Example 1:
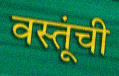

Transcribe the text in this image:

वस्तूंची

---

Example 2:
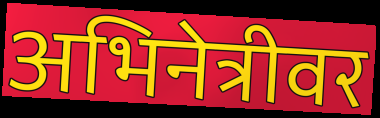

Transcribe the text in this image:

अभिनेत्रीवर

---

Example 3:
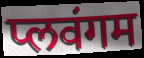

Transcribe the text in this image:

प्लवंगम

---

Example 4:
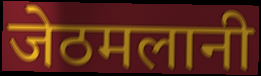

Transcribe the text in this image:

जेठमलानी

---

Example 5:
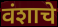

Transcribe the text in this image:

वंशाचे